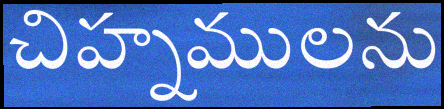
చిహ్నములను